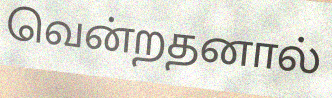
வென்றதனால்